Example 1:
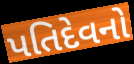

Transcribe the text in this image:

પતિદેવનો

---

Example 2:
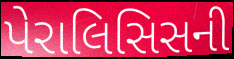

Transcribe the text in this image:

પેરાલિસિસની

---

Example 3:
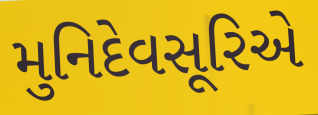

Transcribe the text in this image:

મુનિદેવસૂરિએ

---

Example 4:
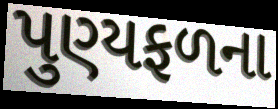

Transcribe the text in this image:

પુણ્યફળના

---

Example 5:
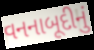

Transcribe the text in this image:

વનનાબૂદીનું